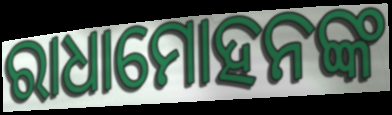
ରାଧାମୋହନଙ୍କ